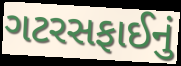
ગટરસફાઈનું